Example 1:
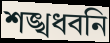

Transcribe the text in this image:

শঙ্খধবনি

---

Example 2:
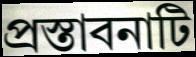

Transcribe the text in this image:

প্রস্তাবনাটি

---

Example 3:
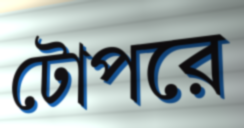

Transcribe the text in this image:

টোপরে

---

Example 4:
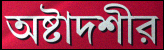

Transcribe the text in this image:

অষ্টাদশীর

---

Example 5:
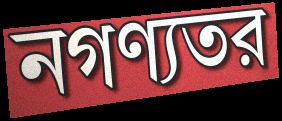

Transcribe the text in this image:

নগণ্যতর